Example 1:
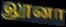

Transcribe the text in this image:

லூனா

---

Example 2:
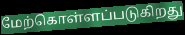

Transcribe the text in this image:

மேற்கொள்ளப்படுகிறது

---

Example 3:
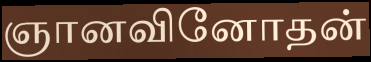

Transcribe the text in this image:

ஞானவினோதன்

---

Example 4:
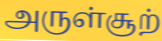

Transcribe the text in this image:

அருள்சூற்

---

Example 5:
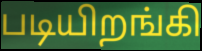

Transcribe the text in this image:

படியிறங்கி